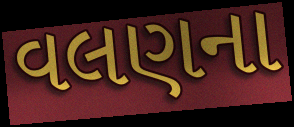
વલણના